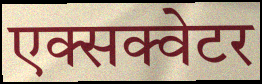
एक्सक्वेटर